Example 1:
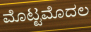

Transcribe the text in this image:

ಮೊಟ್ಟಮೊದಲ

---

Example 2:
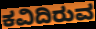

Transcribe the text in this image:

ಕವಿದಿರುವ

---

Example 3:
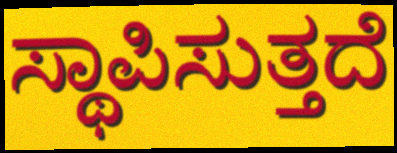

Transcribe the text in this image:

ಸ್ಥಾಪಿಸುತ್ತದೆ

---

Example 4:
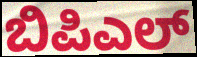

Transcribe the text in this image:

ಬಿಪಿಎಲ್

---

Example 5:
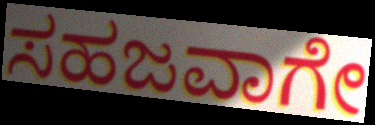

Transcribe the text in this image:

ಸಹಜವಾಗೇ